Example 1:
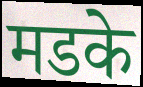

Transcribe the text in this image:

मडके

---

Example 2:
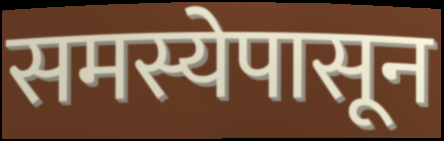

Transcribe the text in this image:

समस्येपासून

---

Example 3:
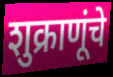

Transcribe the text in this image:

शुक्राणूंचे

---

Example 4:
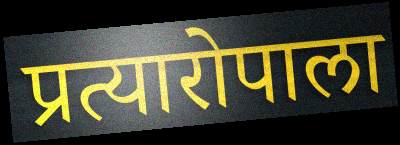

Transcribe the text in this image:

प्रत्यारोपाला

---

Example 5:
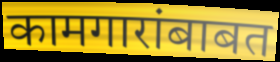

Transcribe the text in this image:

कामगारांबाबत